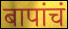
बापांचं